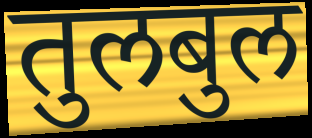
तुलबुल